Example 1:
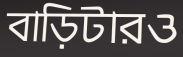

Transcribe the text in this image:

বাড়িটারও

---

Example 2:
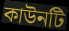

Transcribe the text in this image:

কাউনটি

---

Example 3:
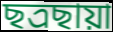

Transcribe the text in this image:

ছত্রছায়া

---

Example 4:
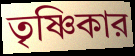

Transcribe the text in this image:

তৃষ্ণিকার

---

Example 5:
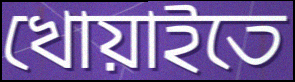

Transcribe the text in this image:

খোয়াইতে